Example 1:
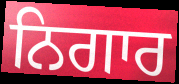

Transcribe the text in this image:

ਨਿਗਾਰ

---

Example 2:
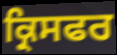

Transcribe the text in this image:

ਕ੍ਰਿਸਫਰ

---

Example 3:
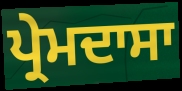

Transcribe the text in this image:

ਪ੍ਰੇਮਦਾਸਾ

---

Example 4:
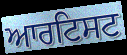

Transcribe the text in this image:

ਆਰਟਿਸਟ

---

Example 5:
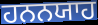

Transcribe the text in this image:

ਹਨਨਯਾਹ